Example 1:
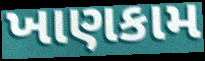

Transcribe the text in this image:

ખાણકામ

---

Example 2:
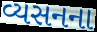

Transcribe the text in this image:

વ્યસનના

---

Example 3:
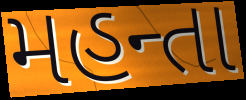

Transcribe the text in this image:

મહન્તા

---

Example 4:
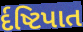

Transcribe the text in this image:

ર્દષ્ટિપાત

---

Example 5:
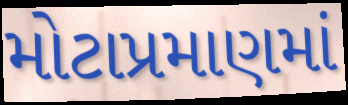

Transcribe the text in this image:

મોટાપ્રમાણમાં